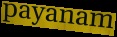
payanam